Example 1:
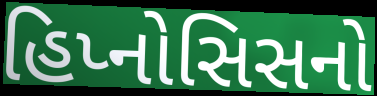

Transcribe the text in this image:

હિપ્નોસિસનો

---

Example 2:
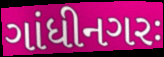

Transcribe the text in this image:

ગાંધીનગરઃ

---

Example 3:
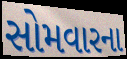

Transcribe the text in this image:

સોમવારના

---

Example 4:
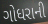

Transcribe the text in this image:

ગોધરાની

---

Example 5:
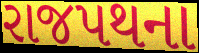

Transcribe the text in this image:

રાજપથના